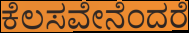
ಕೆಲಸವೇನೆಂದರೆ